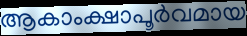
ആകാംക്ഷാപൂർവമായ